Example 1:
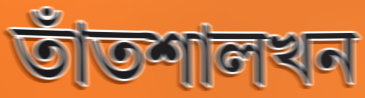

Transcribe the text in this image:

তাঁতশালখন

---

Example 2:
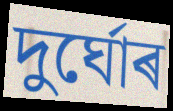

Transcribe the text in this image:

দুৰ্ঘোৰ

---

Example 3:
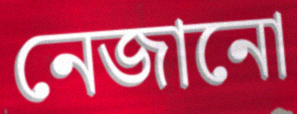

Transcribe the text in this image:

নেজানো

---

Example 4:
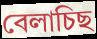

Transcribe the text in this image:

বেলাচিছ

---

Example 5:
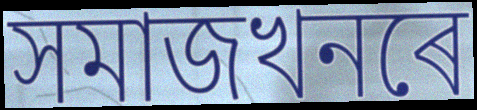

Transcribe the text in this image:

সমাজখনৰে